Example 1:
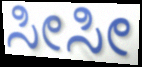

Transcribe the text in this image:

ಸೀಸೀ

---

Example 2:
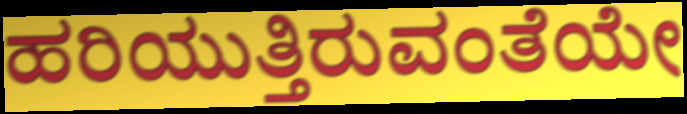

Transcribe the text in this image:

ಹರಿಯುತ್ತಿರುವಂತೆಯೇ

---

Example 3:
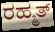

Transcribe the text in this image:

ರಹ್ಮತ್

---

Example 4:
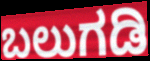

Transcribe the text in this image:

ಬಲುಗಡಿ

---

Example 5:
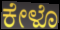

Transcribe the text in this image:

ಕೇಳೊ